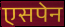
एसपेन